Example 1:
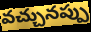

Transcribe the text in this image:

వచ్చునప్పు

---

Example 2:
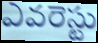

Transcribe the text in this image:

ఎవరెస్టు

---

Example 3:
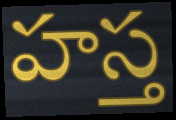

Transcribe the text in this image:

హస్త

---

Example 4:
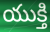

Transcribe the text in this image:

యుక్తి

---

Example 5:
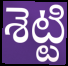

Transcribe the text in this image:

శెట్టి